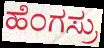
ಹೆಂಗಸ್ರು